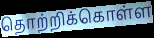
தொற்றிக்கொள்ள